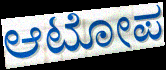
ಆಟೋಪ